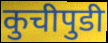
कुचीपुडी